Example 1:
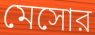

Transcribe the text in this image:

মেসোর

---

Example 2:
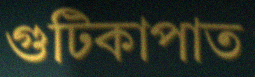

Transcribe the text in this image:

গুটিকাপাত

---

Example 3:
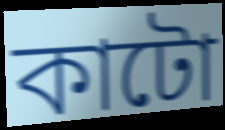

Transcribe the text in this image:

কাটো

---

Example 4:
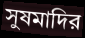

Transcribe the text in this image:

সুষমাদির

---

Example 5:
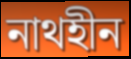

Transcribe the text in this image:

নাথহীন